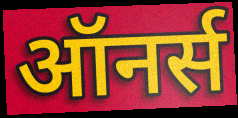
ऑनर्स